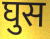
घुस